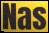
Nas